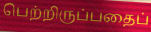
பெற்றிருப்பதைப்